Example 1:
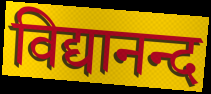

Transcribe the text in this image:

विद्यानन्द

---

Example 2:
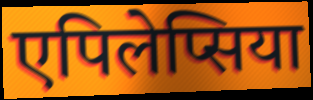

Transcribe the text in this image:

एपिलेप्सिया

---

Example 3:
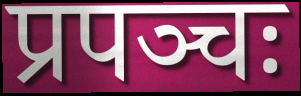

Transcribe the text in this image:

प्रपञ्चः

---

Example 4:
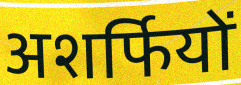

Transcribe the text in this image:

अशर्फियों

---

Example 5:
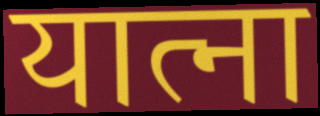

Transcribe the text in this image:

यात्ना